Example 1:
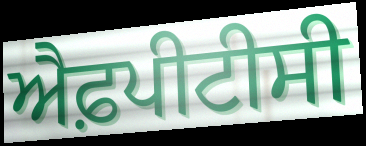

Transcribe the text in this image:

ਐਫ਼ਪੀਟੀਸੀ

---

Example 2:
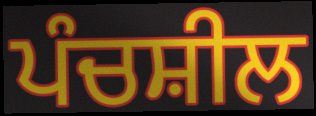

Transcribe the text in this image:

ਪੰਚਸ਼ੀਲ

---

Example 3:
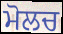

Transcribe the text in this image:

ਮੋਲਚ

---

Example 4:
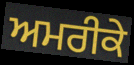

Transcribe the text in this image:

ਅਮਰੀਕੇ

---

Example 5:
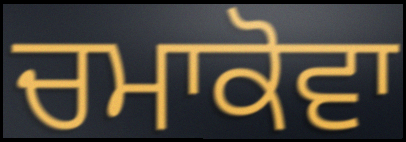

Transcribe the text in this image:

ਚਮਾਕੋਵਾ